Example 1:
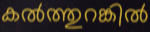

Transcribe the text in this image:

കൽത്തുറങ്കിൽ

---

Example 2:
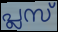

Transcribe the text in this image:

പ്ലസ്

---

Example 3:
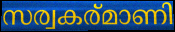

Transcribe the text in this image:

സര്വകര്മാണി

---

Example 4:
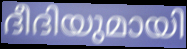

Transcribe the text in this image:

ദീദിയുമായി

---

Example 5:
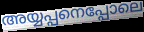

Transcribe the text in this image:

അയ്യപ്പനെപ്പോലെ